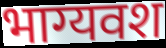
भाग्यवश